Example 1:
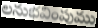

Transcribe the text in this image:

లనుభవింపుము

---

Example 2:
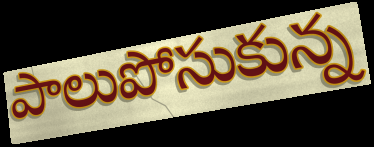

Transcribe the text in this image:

పాలుపోసుకున్న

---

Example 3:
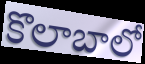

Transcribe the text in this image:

కొలాబాలో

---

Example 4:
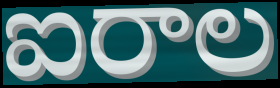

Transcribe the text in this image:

ఐరాల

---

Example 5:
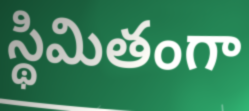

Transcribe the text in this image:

స్థిమితంగా